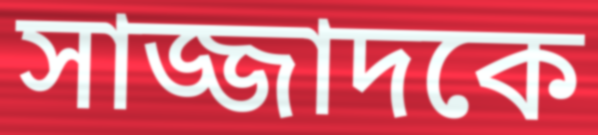
সাজ্জাদকে